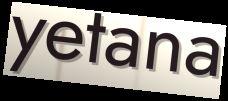
yetana